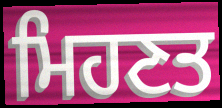
ਮਿਹਣਤ